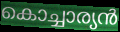
കൊച്ചാര്യൻ